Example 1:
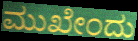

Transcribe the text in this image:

ಮುಖೇಂದು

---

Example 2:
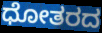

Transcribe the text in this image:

ಧೋತರದ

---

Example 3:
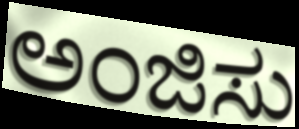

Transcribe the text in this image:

ಅಂಜಿಸು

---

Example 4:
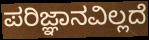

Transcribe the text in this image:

ಪರಿಜ್ಞಾನವಿಲ್ಲದೆ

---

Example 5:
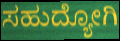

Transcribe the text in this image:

ಸಹುದ್ಯೋಗಿ